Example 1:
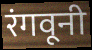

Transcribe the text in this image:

रंगवूनी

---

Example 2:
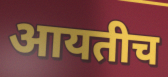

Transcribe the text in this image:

आयतीच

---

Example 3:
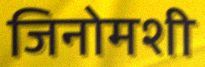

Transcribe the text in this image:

जिनोमशी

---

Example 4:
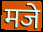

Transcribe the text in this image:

मजे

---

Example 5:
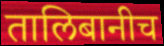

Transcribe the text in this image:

तालिबानीच